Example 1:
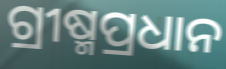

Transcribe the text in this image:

ଗ୍ରୀଷ୍ମପ୍ରଧାନ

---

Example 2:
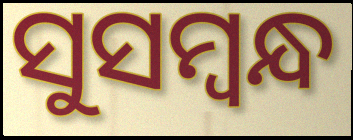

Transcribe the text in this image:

ସୁସମ୍ବନ୍ଧ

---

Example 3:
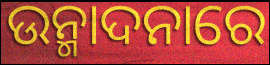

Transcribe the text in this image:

ଉନ୍ମାଦନାରେ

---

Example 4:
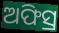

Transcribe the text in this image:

ଅଫିସ୍ର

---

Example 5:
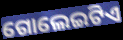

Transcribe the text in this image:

ଗୋଲେଇଟିଏ